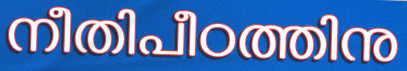
നീതിപീഠത്തിനു